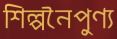
শিল্পনৈপুণ্য